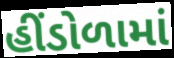
હીંડોળામાં